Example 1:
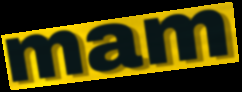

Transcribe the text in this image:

mam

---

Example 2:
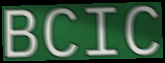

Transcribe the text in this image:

BCIC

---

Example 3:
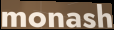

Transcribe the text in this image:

monash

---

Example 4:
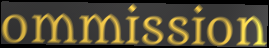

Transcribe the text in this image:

ommission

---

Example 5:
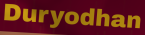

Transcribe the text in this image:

Duryodhan